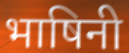
भाषिनी